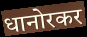
धानोरकर